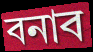
বনাব